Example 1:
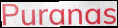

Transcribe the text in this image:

Puranas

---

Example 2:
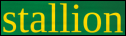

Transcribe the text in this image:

stallion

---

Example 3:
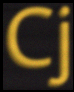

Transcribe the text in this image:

Cj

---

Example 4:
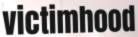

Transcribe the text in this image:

victimhood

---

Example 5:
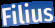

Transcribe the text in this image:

Filius